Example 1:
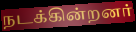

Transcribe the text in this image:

நடக்கின்றனர்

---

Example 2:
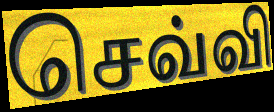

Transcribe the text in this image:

செவ்வி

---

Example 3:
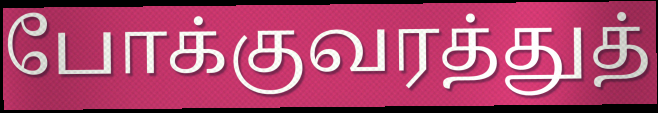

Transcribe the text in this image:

போக்குவரத்துத்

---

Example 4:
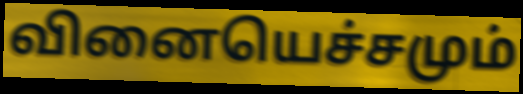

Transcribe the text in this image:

வினையெச்சமும்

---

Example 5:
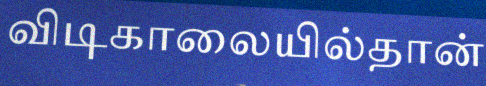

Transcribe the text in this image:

விடிகாலையில்தான்